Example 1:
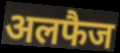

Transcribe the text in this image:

अलफैज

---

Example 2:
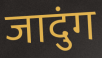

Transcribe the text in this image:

जादुंग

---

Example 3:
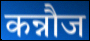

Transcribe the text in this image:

कन्नौज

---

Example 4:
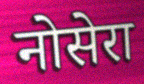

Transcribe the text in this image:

नोसेरा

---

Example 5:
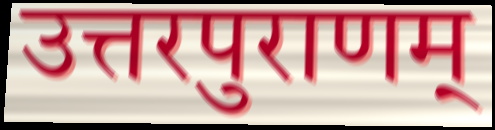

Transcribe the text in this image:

उत्तरपुराणम्